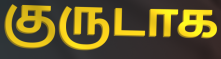
குருடாக